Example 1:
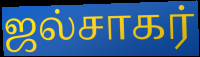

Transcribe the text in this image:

ஜல்சாகர்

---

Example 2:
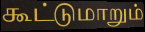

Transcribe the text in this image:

கூட்டுமாறும்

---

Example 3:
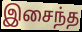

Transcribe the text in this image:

இசைந்த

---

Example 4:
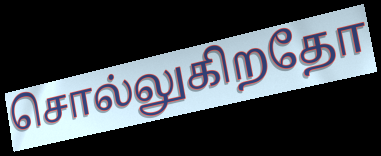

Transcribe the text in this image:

சொல்லுகிறதோ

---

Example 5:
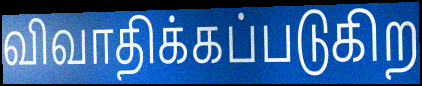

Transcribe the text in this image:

விவாதிக்கப்படுகிற